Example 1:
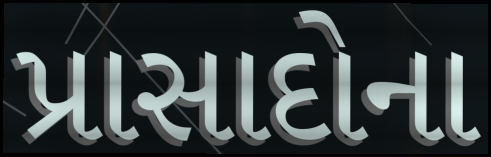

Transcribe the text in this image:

પ્રાસાદોના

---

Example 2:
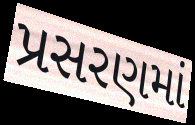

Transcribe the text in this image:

પ્રસરણમાં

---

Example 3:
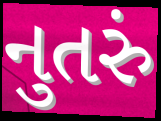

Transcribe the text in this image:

નુતરું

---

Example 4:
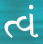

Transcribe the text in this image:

ત્વં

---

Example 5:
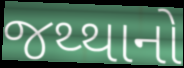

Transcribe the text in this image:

જથ્થાનો